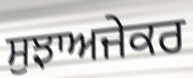
ਸੁਝਾਅਜੇਕਰ